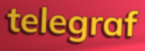
telegraf